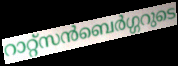
റാറ്റ്സൻബെർഗ്ഗറുടെ